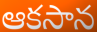
ఆకసాన